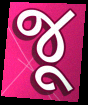
જૂ